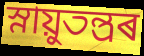
স্নায়ুতন্ত্ৰৰ